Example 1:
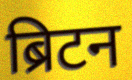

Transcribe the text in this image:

ब्रिटन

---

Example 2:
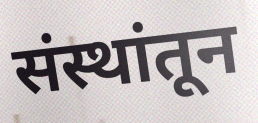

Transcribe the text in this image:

संस्थांतून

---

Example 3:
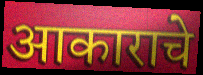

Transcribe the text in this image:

आकाराचे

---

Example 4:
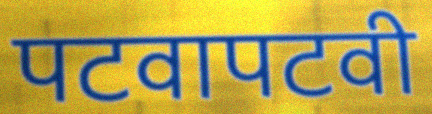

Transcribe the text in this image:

पटवापटवी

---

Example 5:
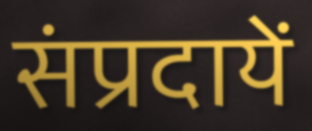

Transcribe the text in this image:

संप्रदायें